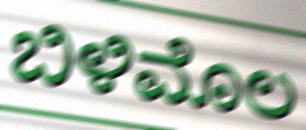
ಬಿಳಿಮೊಲ